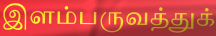
இளம்பருவத்துக்